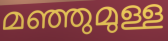
മഞ്ഞുമുള്ള